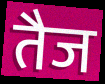
तैज